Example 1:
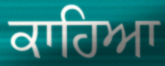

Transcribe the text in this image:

ਕਾਹਿਆ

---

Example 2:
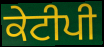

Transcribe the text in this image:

ਕੇਟੀਪੀ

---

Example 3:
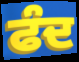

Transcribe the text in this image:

ਫੰਦ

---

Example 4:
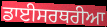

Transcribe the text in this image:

ਡਾਈਸਰਥਰੀਆ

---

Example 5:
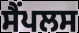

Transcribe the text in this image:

ਸੈਂਪਲਸ